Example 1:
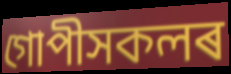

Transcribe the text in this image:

গোপীসকলৰ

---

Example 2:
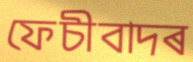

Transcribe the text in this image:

ফেচীবাদৰ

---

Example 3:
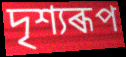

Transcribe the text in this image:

দৃশ্যৰূপ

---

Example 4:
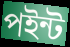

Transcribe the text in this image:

পইন্ট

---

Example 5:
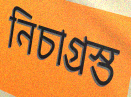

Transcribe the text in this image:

নিচাগ্ৰস্ত